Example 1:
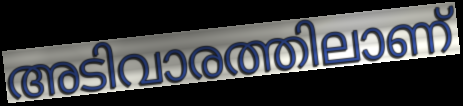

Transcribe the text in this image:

അടിവാരത്തിലാണ്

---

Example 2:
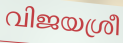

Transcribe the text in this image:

വിജയശ്രീ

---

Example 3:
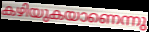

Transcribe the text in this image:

കഴിയുകയാണെന്നു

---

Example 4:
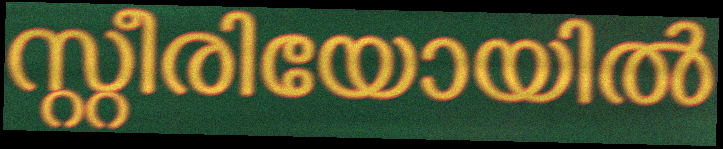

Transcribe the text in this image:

സ്റ്റീരിയോയിൽ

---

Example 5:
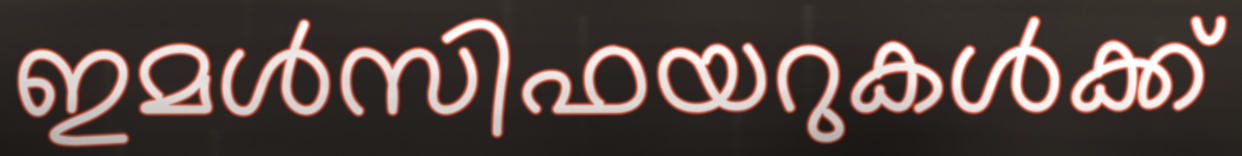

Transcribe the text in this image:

ഇമൾസിഫയറുകൾക്ക്